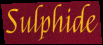
Sulphide